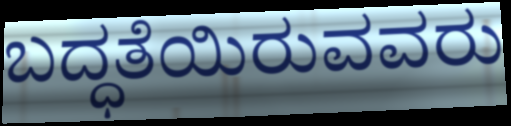
ಬದ್ಧತೆಯಿರುವವರು